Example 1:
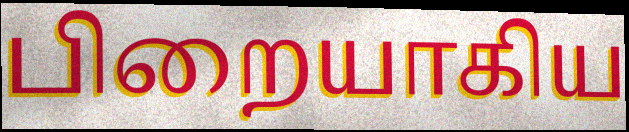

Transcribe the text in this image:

பிறையாகிய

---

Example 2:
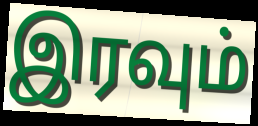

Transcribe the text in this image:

இரவும்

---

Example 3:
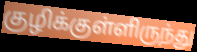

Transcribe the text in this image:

குழிக்குள்ளிருந்து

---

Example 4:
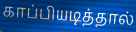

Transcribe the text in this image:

காப்பியடித்தால்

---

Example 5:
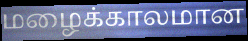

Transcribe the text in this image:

மழைக்காலமான